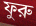
ফুরু